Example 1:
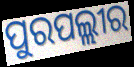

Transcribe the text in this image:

ପୁରପଲ୍ଲୀର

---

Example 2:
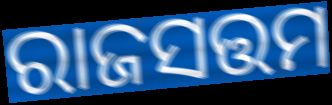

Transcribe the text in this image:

ରାଜସତ୍ତମ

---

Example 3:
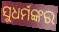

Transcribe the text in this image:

ସୁଧର୍ମଙ୍କର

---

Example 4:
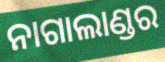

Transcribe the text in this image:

ନାଗାଲାଣ୍ଡର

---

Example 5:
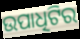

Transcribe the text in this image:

ଉପାଧିଟିର